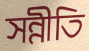
সন্নীতি